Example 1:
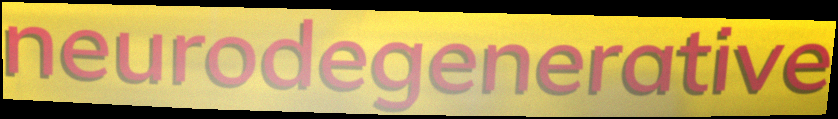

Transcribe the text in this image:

neurodegenerative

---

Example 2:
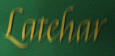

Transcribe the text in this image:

Latehar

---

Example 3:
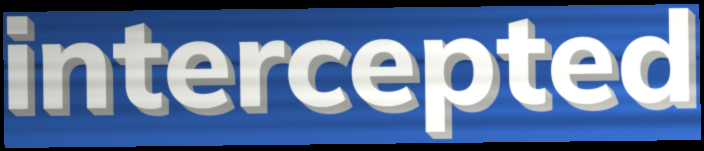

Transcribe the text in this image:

intercepted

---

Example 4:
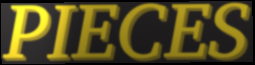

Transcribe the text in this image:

PIECES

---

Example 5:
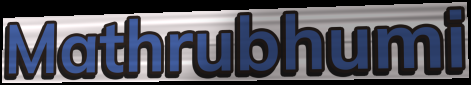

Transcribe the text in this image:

Mathrubhumi